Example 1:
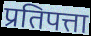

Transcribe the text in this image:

प्रतिपत्ता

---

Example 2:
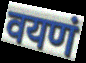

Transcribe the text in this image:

वयणं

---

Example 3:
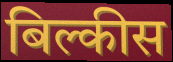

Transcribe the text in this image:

बिल्कीस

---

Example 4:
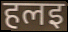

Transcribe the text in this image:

हलइ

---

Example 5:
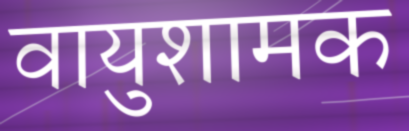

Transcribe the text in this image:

वायुशामक